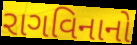
રાગવિનાનો